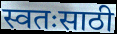
स्वतःसाठी